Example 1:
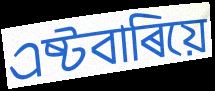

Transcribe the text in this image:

এষ্টবাৰিয়ে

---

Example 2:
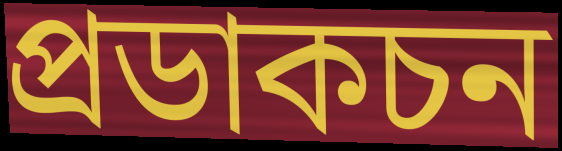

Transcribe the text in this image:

প্ৰডাকচন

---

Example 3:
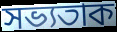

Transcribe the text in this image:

সভ্যতাক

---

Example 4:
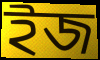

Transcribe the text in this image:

ইজ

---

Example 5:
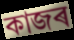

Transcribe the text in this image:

কাজৰ